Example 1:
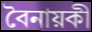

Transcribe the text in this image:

বৈনায়কী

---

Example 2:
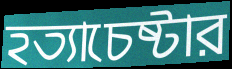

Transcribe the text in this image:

হত্যাচেষ্টার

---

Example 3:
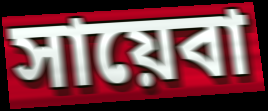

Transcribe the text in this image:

সায়েবা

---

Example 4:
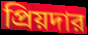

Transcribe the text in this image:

প্রিয়দার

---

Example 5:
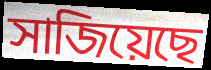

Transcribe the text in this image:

সাজিয়েছে